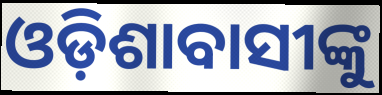
ଓଡ଼ିଶାବାସୀଙ୍କୁ